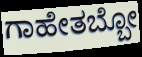
ಗಾಹೇತಬ್ಬೋ